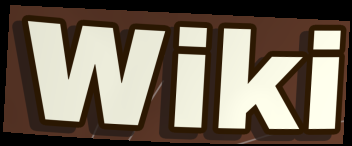
Wiki